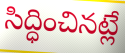
సిద్ధించినట్లే